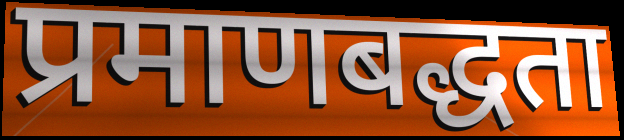
प्रमाणबद्धता